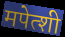
मपेत्शी